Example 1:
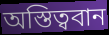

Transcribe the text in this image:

অস্তিত্ববান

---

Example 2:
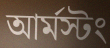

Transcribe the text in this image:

আর্মস্টং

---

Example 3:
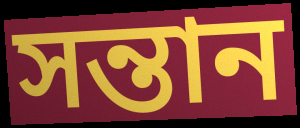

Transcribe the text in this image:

সন্তান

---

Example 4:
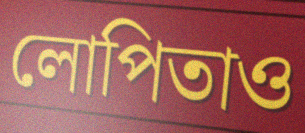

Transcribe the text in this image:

লোপিতাও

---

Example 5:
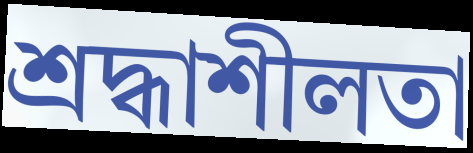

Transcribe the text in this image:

শ্রদ্ধাশীলতা